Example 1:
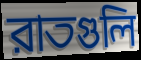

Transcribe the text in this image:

রাতগুলি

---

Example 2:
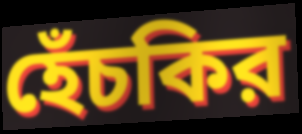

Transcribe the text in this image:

হেঁচকির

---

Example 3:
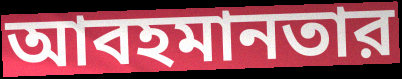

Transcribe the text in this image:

আবহমানতার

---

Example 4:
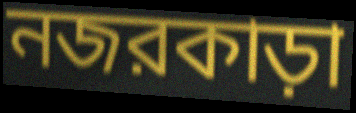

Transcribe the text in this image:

নজরকাড়া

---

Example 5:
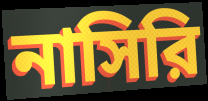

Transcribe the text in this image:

নাসিরি